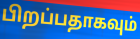
பிறப்பதாகவும்